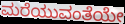
ಮರೆಯುವಂತೆಯೇ